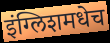
इंग्लिशमधेच